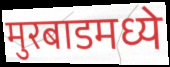
मुरबाडमध्ये